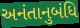
અનંતાનુબંધિ